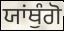
ਯਾਂਥੁੰਗੋ